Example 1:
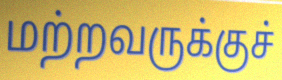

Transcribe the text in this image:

மற்றவருக்குச்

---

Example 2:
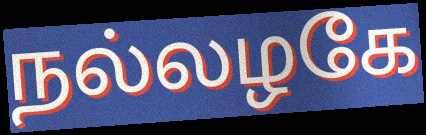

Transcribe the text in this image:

நல்லழகே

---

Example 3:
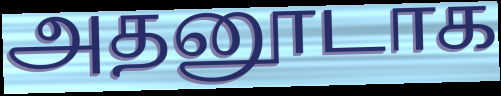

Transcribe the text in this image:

அதனூடாக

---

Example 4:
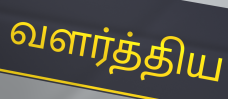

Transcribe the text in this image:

வளர்த்திய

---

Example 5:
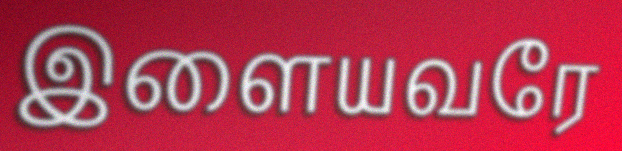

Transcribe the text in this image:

இளையவரே